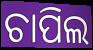
ଚାପିଲ